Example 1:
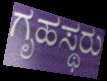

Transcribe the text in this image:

ಗೃಹಸ್ಥರು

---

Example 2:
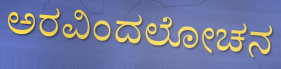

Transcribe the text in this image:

ಅರವಿಂದಲೋಚನ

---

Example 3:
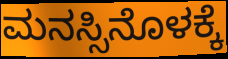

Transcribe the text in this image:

ಮನಸ್ಸಿನೊಳಕ್ಕೆ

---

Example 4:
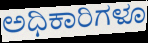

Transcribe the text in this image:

ಅಧಿಕಾರಿಗಳೂ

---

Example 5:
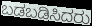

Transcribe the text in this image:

ಬಡಬಡಿಸಿದರು